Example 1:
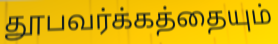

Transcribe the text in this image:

தூபவர்க்கத்தையும்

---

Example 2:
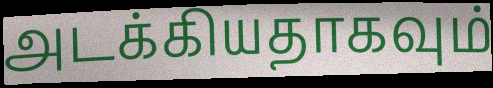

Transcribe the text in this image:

அடக்கியதாகவும்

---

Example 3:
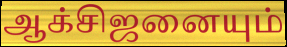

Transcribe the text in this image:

ஆக்சிஜனையும்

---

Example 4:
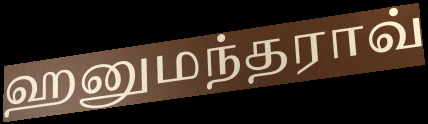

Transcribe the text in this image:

ஹனுமந்தராவ்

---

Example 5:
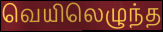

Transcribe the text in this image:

வெயிலெழுந்த